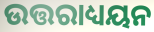
ଉତ୍ତରାଧ୍ୟୟନ